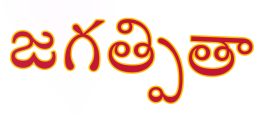
జగత్పితా